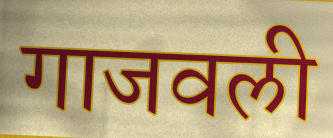
गाजवली